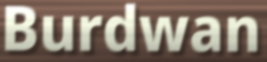
Burdwan